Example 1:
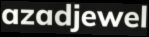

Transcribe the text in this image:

azadjewel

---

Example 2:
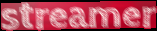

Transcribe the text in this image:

streamer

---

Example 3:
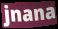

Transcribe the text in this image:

jnana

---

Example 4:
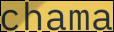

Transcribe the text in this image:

chama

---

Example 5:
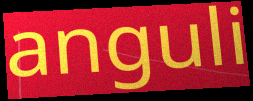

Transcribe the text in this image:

anguli